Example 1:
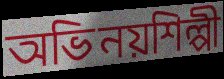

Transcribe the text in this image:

অভিনয়শিল্পী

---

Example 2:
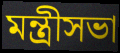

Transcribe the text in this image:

মন্ত্রীসভা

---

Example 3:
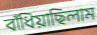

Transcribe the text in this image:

বাঁধিয়াছিলাম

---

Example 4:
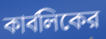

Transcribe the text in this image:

কার্বলিকের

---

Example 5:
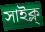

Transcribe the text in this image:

সাইক্ল্